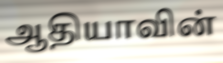
ஆதியாவின்